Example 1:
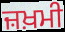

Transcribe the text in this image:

ਜ਼ਖ਼ਮੀ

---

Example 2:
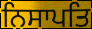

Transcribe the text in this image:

ਨਿਸਾਪਤਿ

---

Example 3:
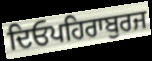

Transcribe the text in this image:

ਦਿਓਪਹਿਰਾਬੁਰਜ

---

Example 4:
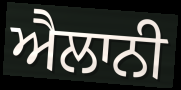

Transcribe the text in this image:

ਐਲਾਨੀ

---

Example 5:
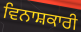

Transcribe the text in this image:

ਵਿਨਾਸ਼ਕਾਰੀ